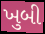
ખુબી